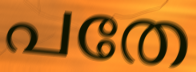
പതേ